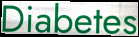
Diabetes